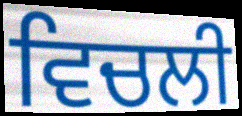
ਵਿਚਲੀ